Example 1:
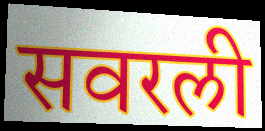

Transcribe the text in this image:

सवरली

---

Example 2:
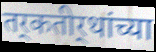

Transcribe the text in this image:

तर्कतीर्थांच्या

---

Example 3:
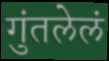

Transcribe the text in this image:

गुंतलेलं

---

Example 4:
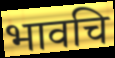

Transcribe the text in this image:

भावचि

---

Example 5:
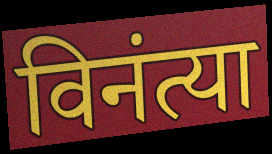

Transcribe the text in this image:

विनंत्या